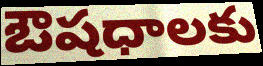
ఔషధాలకు